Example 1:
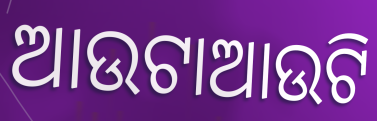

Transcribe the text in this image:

ଆଉଟାଆଉଟି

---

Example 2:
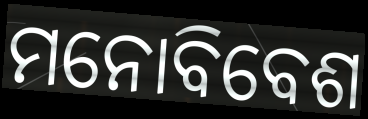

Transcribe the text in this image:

ମନୋବିବେଶ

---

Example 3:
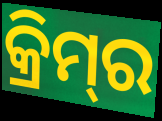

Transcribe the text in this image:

କ୍ରିମ୍‌ର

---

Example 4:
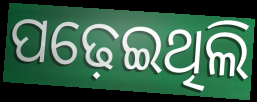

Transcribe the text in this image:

ପଢ଼େଇଥିଲି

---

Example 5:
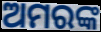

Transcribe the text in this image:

ଅମରଙ୍କ